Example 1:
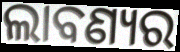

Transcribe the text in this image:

ଲାବଣ୍ୟର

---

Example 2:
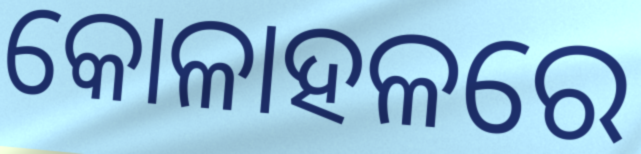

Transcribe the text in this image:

କୋଳାହଳରେ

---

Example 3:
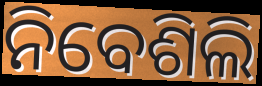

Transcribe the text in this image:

ନିବେଶିଲି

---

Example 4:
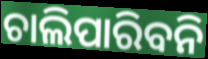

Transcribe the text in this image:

ଚାଲିପାରିବନି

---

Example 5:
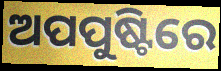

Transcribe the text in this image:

ଅପପୁଷ୍ଟିରେ